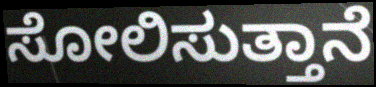
ಸೋಲಿಸುತ್ತಾನೆ